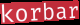
korbar